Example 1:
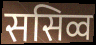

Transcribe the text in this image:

ससिव्व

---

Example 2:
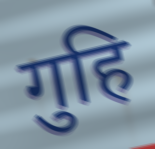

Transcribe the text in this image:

गुहि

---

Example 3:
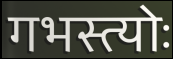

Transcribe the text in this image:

गभस्त्योः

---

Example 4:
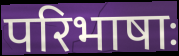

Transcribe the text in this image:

परिभाषाः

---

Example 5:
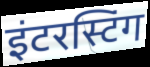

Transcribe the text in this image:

इंटरस्टिंग